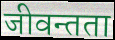
जीवन्तता